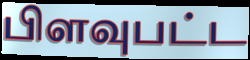
பிளவுபட்ட